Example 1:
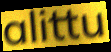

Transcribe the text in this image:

alittu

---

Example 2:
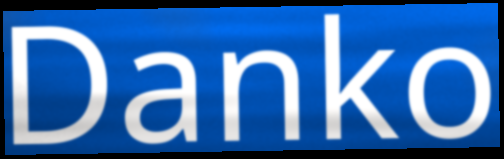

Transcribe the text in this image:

Danko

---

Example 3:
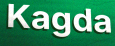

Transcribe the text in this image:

Kagda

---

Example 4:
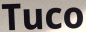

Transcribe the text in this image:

Tuco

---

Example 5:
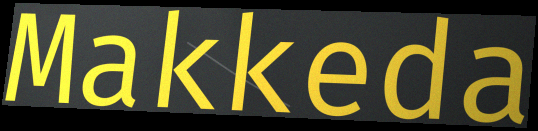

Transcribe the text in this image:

Makkeda